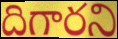
దిగారని